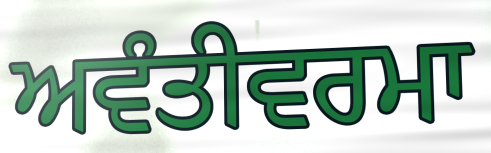
ਅਵੰਤੀਵਰਮਾ